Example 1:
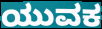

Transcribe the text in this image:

ಯುವಕ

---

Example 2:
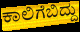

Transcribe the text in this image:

ಕಾಲಿಗೆಬಿದ್ದು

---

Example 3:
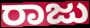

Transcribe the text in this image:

ರಾಜು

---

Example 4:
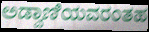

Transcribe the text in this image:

ಅಡ್ವಾಣಿಯವರಂತಹ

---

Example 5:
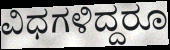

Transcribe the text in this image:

ವಿಧಗಳಿದ್ದರೂ